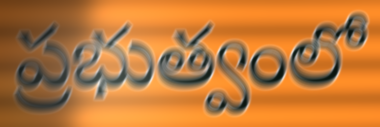
ప్రభుత్వంలో